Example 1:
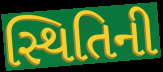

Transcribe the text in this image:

સ્થિતિની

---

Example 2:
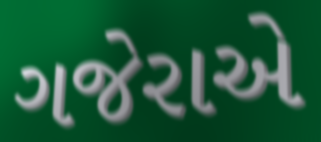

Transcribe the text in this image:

ગજેરાએ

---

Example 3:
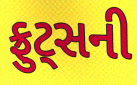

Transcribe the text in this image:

ફ્રુટ્સની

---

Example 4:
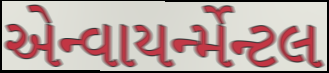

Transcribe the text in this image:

એન્વાયર્ન્મેન્ટલ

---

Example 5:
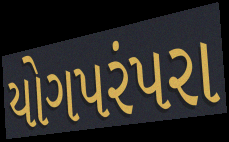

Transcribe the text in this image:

યોગપરંપરા